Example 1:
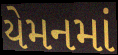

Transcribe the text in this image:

યેમનમાં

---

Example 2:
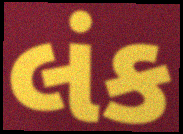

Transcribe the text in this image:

લંક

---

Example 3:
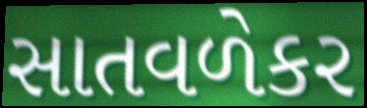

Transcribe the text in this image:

સાતવળેકર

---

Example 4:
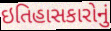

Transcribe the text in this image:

ઇતિહાસકારોનું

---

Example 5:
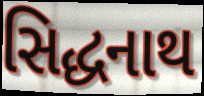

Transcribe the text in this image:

સિદ્ધનાથ